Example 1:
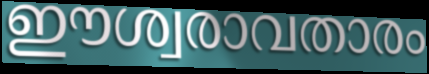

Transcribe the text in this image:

ഈശ്വരാവതാരം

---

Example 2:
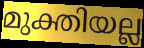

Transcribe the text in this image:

മുക്തിയല്ല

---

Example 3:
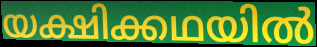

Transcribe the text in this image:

യക്ഷിക്കഥയിൽ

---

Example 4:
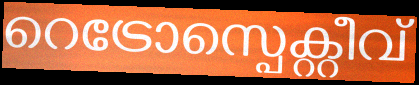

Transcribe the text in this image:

റെട്രോസ്പെക്റ്റീവ്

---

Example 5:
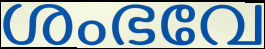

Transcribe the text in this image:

ശംഭവേ